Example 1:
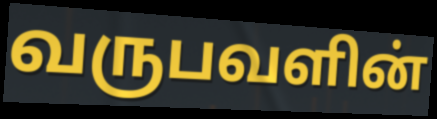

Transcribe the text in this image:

வருபவளின்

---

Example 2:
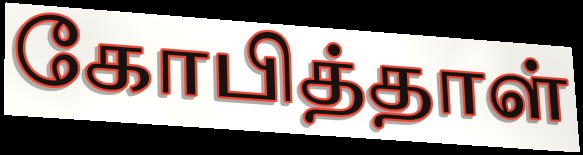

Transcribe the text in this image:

கோபித்தாள்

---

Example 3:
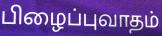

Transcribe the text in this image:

பிழைப்புவாதம்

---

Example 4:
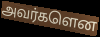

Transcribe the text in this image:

அவர்களென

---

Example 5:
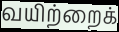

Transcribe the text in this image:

வயிற்றைக்